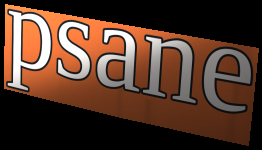
psane